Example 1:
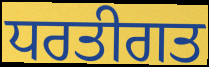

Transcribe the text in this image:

ਧਰਤੀਗਤ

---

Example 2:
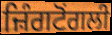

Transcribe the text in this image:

ਜ਼ਿੰਗਟੋਂਗਲੀ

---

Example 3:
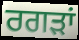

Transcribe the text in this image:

ਰਗੜਾਂ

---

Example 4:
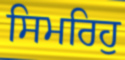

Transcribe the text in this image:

ਸਿਮਰਿਹੁ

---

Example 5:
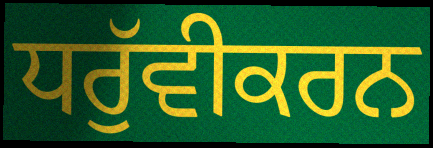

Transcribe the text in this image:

ਧਰੁੱਵੀਕਰਨ